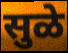
सुळे